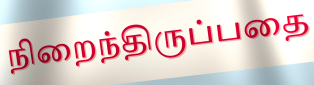
நிறைந்திருப்பதை